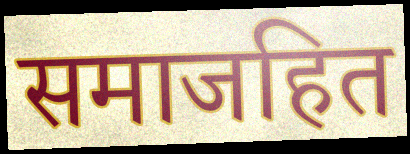
समाजहित